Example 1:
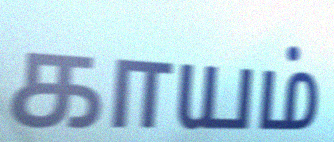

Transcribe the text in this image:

காயம்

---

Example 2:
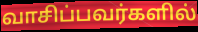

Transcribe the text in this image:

வாசிப்பவர்களில்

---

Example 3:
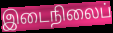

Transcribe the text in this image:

இடைநிலைப்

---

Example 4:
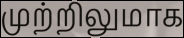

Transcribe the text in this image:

முற்றிலுமாக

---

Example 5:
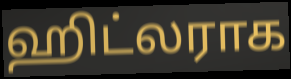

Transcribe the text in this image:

ஹிட்லராக